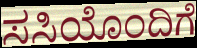
ಸಸಿಯೊಂದಿಗೆ